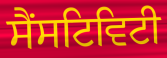
ਸੈਂਸਟਿਵਿਟੀ